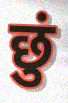
छुं